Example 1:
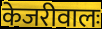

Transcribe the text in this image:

केजरीवालः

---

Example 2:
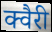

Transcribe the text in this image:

क्वैरी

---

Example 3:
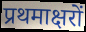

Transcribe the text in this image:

प्रथमाक्षरों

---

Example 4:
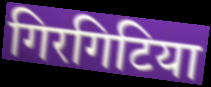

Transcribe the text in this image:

गिरगिटिया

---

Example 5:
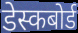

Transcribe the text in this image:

डेस्कबोर्ड